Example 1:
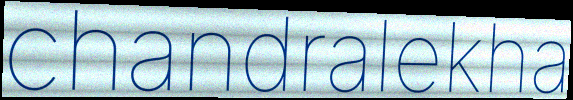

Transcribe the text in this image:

chandralekha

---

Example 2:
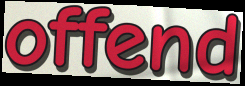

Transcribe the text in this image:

offend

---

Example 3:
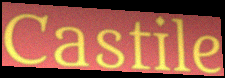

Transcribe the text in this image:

Castile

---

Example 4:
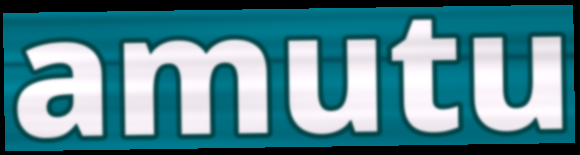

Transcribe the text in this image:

amutu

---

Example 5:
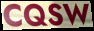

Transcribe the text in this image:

CQSW